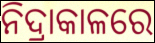
ନିଦ୍ରାକାଳରେ